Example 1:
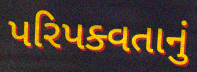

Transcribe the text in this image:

પરિપક્વતાનું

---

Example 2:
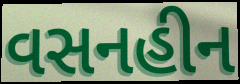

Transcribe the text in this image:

વસનહીન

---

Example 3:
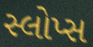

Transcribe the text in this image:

સ્લોપ્સ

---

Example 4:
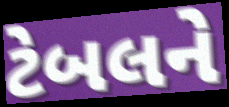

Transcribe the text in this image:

ટેબલને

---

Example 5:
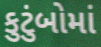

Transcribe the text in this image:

કુટુંબોમાં